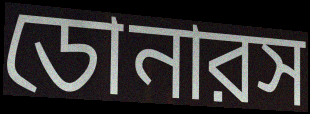
ডোনারস